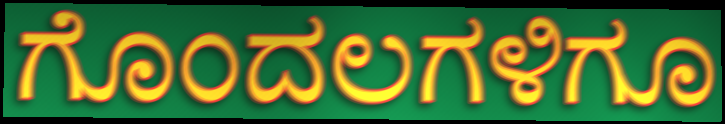
ಗೊಂದಲಗಳಿಗೂ